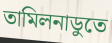
তামিলনাডুতে